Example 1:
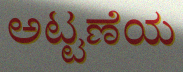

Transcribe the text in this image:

ಅಟ್ಟಣೆಯ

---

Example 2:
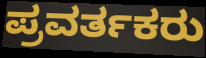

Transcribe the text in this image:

ಪ್ರವರ್ತಕರು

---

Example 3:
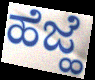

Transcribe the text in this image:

ಹೆಜ್ಹೆ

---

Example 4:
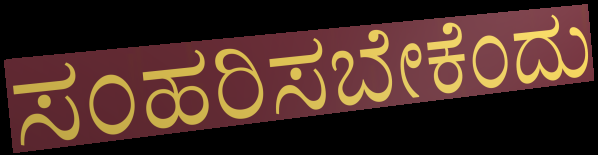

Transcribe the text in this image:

ಸಂಹರಿಸಬೇಕೆಂದು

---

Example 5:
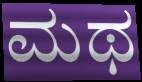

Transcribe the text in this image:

ಮಥ